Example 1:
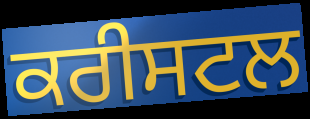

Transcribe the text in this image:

ਕਰੀਸਟਲ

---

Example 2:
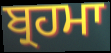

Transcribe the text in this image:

ਬ੍ਰਹਮਾ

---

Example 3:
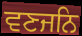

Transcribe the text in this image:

ਵਣਜਨਿ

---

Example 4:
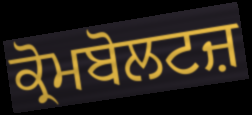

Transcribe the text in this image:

ਕ੍ਰੋਮਬੋਲਟਜ਼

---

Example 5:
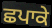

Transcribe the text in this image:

ਛਪਾਕੇ